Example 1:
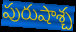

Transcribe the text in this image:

పురుషాశ్చ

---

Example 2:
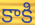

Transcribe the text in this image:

కాకి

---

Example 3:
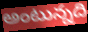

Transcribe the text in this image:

అంటున్నది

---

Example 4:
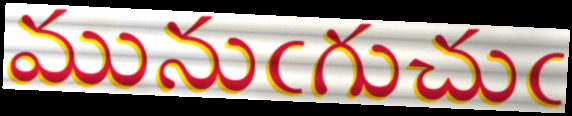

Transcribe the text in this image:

మునుఁగుచుఁ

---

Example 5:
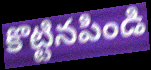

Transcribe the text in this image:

కొట్టినపిండి